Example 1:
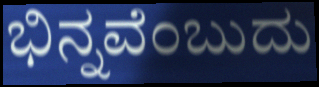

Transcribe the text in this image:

ಭಿನ್ನವೆಂಬುದು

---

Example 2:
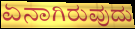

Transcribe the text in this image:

ಏನಾಗಿರುವುದು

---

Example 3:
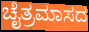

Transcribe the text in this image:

ಚೈತ್ರಮಾಸದ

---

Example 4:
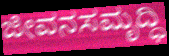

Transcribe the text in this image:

ಜೀವನಸಮೃದ್ಧಿ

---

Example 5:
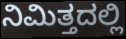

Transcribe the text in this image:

ನಿಮಿತ್ತದಲ್ಲಿ